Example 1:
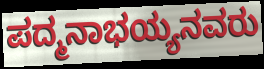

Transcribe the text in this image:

ಪದ್ಮನಾಭಯ್ಯನವರು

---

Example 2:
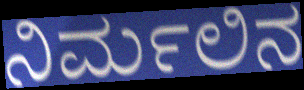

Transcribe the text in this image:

ನಿರ್ಮಲಿನ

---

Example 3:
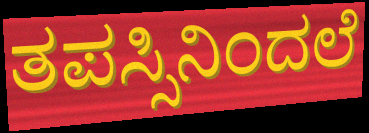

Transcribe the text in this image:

ತಪಸ್ಸಿನಿಂದಲೆ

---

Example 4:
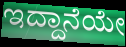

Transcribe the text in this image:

ಇದ್ದಾನೆಯೇ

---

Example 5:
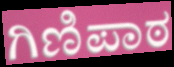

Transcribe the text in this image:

ಗಿಣಿಪಾಠ